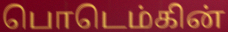
பொடெம்கின்